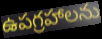
ఉపగ్రహాలను